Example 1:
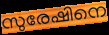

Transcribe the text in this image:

സുരേഷിനെ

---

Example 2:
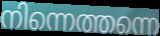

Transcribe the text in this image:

നിന്നെത്തന്നെ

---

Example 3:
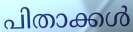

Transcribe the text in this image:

പിതാക്കൾ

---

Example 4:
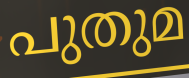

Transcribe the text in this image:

പുതുമ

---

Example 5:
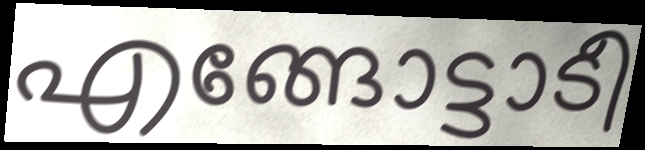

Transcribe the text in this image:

എങ്ങോട്ടാടീ